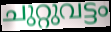
ചുറ്റുവട്ടം